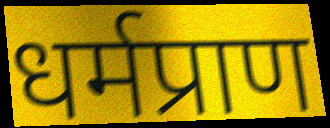
धर्मप्राण